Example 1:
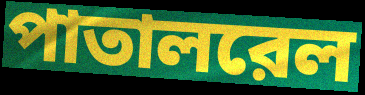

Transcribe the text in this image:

পাতালরেল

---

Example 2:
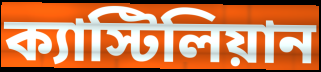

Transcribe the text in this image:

ক্যাস্টিলিয়ান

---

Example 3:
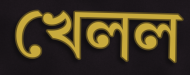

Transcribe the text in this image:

খেলল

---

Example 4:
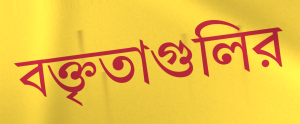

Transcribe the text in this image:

বক্তৃতাগুলির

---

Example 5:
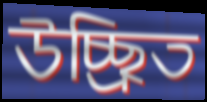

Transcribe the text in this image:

উচ্ছ্রিত